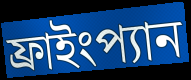
ফ্রাইংপ্যান